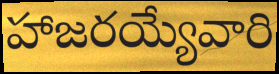
హాజరయ్యేవారి